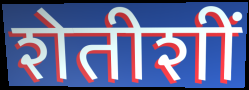
शेतीशीं